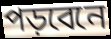
পড়বেনে